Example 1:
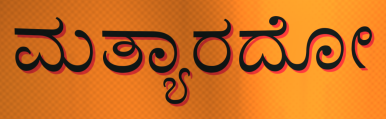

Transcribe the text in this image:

ಮತ್ಯಾರದೋ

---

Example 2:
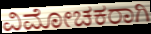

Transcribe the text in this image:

ವಿಮೋಚಕರಾಗಿ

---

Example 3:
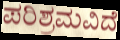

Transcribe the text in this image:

ಪರಿಶ್ರಮವಿದೆ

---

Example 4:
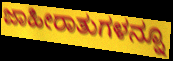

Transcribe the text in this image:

ಜಾಹೀರಾತುಗಳನ್ನೂ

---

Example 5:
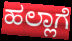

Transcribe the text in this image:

ಹಲ್ಲಾಗೆ